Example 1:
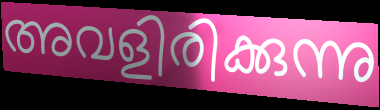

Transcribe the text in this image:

അവളിരിക്കുന്നു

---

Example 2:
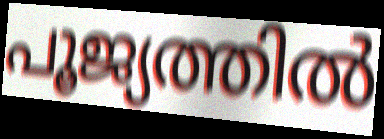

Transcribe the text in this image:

പൂജ്യത്തിൽ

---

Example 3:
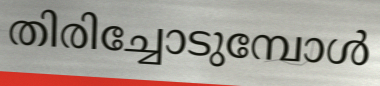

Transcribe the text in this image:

തിരിച്ചോടുമ്പോൾ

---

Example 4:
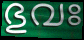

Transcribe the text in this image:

ഭുവഃ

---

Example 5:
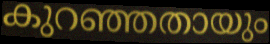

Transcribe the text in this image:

കുറഞ്ഞതായും